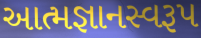
આત્મજ્ઞાનસ્વરૂપ